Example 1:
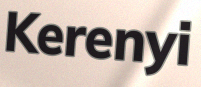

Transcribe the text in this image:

Kerenyi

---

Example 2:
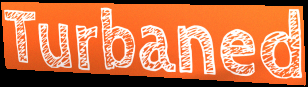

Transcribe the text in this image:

Turbaned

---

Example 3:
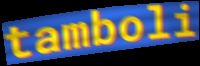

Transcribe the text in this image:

tamboli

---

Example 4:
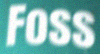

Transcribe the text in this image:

Foss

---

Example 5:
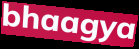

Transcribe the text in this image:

bhaagya